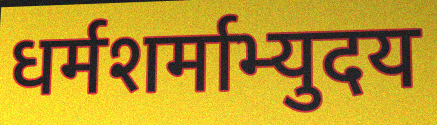
धर्मशर्माभ्युदय